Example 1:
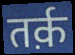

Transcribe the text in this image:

तर्क़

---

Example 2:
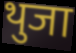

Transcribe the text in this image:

थुजा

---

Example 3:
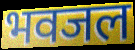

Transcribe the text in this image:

भवजल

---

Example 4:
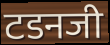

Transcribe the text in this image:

टडनजी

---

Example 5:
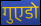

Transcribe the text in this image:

गुएडो